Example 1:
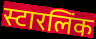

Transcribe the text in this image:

स्टारलिंक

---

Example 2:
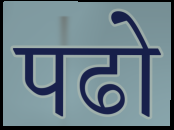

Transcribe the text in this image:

पढो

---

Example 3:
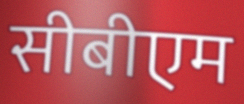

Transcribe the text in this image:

सीबीएम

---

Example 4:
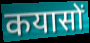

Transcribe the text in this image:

कयासों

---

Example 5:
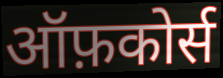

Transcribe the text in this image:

ऑफ़कोर्स